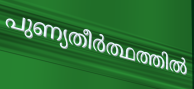
പുണ്യതീർത്ഥത്തിൽ